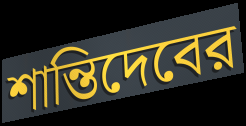
শান্তিদেবের